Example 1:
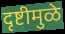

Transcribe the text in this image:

दृष्टीमुळे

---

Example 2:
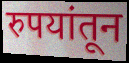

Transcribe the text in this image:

रुपयांतून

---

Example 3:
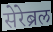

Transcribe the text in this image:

सेरेब्रल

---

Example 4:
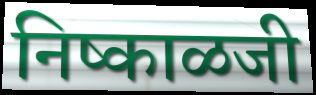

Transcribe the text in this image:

निष्काळजी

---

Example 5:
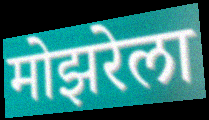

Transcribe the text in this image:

मोझरेला